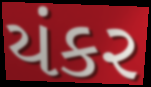
યંકર